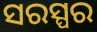
ସରସ୍ପର